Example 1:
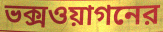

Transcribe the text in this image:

ভক্সওয়াগনের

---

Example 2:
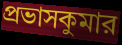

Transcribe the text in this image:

প্রভাসকুমার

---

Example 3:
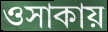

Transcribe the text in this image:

ওসাকায়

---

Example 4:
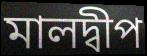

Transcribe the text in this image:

মালদ্বীপ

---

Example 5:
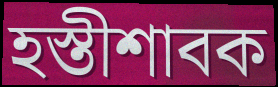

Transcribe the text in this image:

হস্তীশাবক